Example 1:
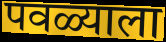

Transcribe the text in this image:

पवळ्याला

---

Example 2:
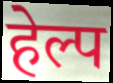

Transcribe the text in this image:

हेल्प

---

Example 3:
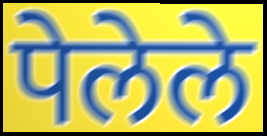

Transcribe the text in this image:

पेलेले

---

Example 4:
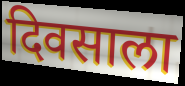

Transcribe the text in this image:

दिवसाला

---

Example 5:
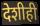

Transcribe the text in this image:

देशीही